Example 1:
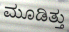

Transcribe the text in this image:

ಮೂಡಿತ್ತು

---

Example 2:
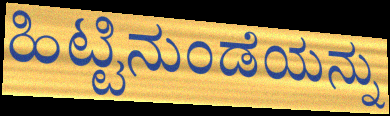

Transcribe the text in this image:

ಹಿಟ್ಟಿನುಂಡೆಯನ್ನು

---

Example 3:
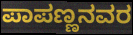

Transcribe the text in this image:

ಪಾಪಣ್ಣನವರ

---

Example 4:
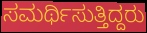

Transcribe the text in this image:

ಸಮರ್ಥಿಸುತ್ತಿದ್ದರು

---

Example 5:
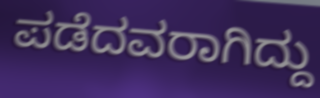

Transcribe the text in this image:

ಪಡೆದವರಾಗಿದ್ದು